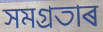
সমগ্ৰতাৰ